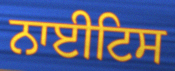
ਨਾਈਟਿਸ